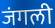
जंगली